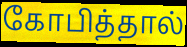
கோபித்தால்